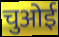
चुओई